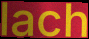
lach